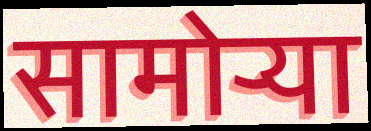
सामोऱ्या